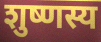
शुष्णस्य